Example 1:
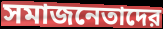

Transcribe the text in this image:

সমাজনেতাদের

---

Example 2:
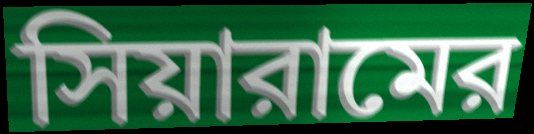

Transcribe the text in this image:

সিয়ারামের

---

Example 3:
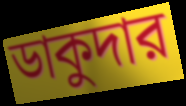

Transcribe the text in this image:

ডাকুদার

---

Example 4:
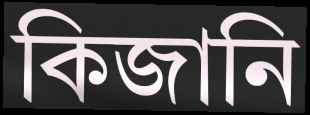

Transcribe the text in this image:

কিজানি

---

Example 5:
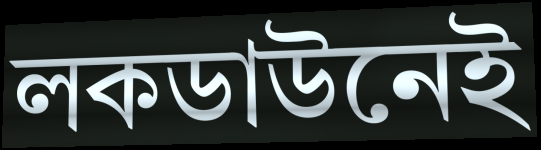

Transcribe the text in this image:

লকডাউনেই